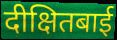
दीक्षितबाई